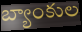
బ్యాంకుల